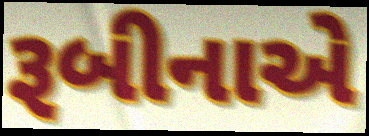
રૂબીનાએ